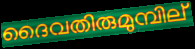
ദൈവതിരുമുമ്പില്